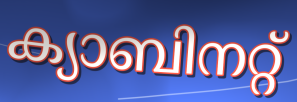
ക്യാബിനറ്റ്